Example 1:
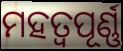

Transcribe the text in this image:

ମହତ୍ବପୂର୍ଣ୍ଣ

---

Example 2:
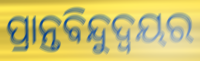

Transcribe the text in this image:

ପ୍ରାନ୍ତବିନ୍ଦୁଦ୍ଵୟର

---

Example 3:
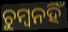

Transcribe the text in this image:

ଚୁମ୍ବନହିଁ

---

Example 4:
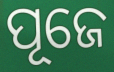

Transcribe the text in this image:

ପୂଜେ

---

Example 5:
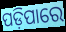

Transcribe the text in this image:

ପଡ଼ିପାରେ